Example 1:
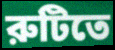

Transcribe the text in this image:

রুটিতে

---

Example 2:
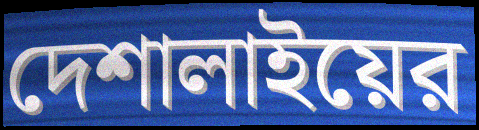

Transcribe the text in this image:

দেশালাইয়ের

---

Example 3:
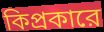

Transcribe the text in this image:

কিপ্রকারে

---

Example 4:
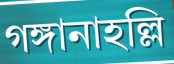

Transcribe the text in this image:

গঙ্গানাহল্লি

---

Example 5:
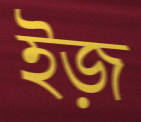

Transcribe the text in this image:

ইজ়